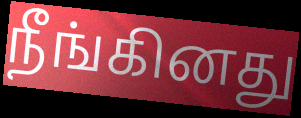
நீங்கினது